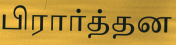
பிரார்த்தன